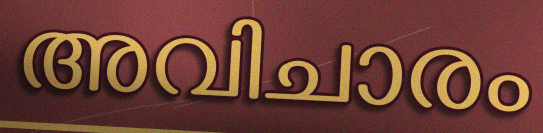
അവിചാരം